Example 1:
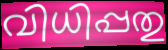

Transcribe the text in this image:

വിധിപ്പതു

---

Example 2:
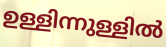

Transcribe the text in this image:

ഉള്ളിന്നുള്ളിൽ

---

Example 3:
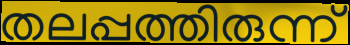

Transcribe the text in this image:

തലപ്പത്തിരുന്ന്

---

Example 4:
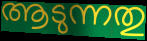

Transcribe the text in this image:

ആടുന്നതു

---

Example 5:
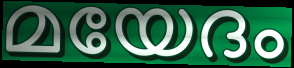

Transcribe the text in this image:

മയേദം